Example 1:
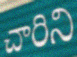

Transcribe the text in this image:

చారిని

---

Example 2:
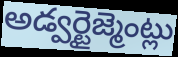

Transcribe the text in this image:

అడ్వర్టైజ్మెంట్లు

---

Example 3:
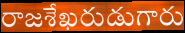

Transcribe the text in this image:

రాజశేఖరుడుగారు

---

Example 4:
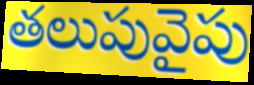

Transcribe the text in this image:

తలుపువైపు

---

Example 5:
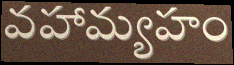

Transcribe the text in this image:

వహామ్యహం